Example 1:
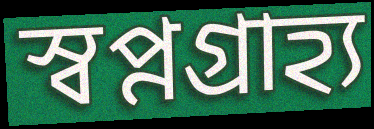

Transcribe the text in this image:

স্বপ্নগ্রাহ্য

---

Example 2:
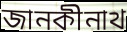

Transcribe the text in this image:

জানকীনাথ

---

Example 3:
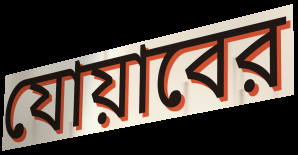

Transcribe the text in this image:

যোয়াবের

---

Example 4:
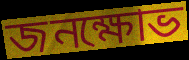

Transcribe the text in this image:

জনক্ষোভ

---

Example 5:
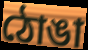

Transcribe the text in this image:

ঠোঙা